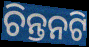
ଚିନ୍ତନଟି